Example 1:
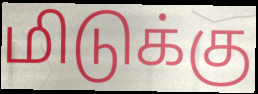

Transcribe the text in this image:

மிடுக்கு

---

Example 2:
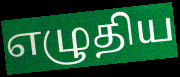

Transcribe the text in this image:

எழுதிய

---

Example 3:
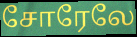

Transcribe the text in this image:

சோரேலே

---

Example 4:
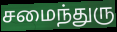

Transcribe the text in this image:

சமைந்துரு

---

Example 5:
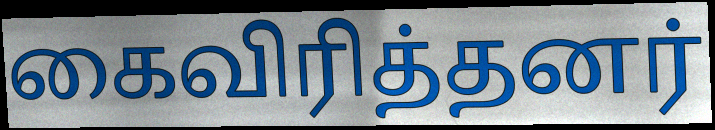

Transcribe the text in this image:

கைவிரித்தனர்